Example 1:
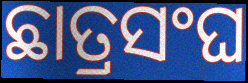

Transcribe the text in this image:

ଛାତ୍ରସଂଘ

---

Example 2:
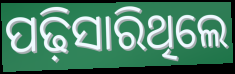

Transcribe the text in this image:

ପଢ଼ିସାରିଥିଲେ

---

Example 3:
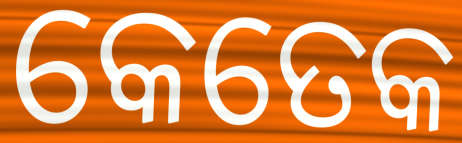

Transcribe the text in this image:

କେତେକ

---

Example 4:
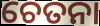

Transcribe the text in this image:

ଚେତନା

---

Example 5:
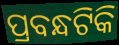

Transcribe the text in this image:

ପ୍ରବନ୍ଧଟିକି